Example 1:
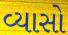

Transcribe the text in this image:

વ્યાસો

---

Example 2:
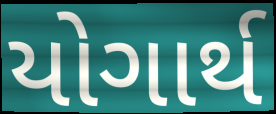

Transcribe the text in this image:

યોગાર્થ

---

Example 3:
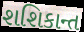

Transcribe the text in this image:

શશિકાન્ત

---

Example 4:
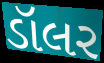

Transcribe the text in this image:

ડૉલર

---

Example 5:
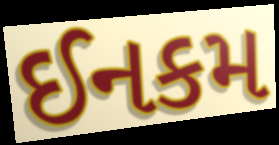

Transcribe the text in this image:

ઈનકમ